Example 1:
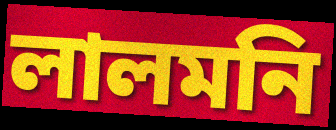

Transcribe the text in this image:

লালমনি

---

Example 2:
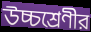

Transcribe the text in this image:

উচ্চশ্রেণীর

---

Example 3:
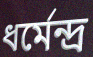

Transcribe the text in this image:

ধর্মেন্দ্র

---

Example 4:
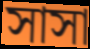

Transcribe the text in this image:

সাসা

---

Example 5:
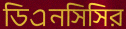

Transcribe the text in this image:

ডিএনসিসির